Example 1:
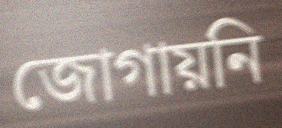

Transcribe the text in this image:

জোগায়নি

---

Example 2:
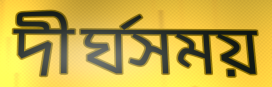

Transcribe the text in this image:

দীর্ঘসময়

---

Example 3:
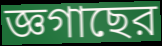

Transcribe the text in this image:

জ্ঞগাছের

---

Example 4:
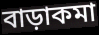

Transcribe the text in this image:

বাড়াকমা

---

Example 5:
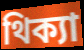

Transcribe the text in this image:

থিক্যা